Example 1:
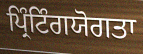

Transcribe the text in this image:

ਪ੍ਰਿੰਟਿੰਗਯੋਗਤਾ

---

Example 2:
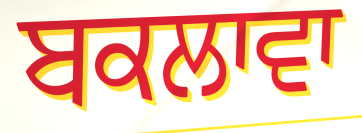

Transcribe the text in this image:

ਬਕਲਾਵਾ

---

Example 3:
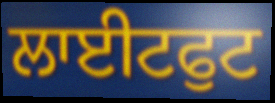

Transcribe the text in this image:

ਲਾਈਟਫੁਟ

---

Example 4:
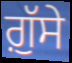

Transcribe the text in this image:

ਗ਼ੁੱਸੇ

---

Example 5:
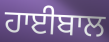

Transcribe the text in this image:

ਹਾਈਬਾਲ